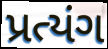
પ્રત્યંગ